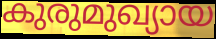
കുരുമുഖ്യായ